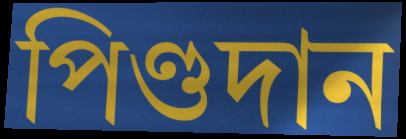
পিণ্ডদান